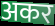
अकर